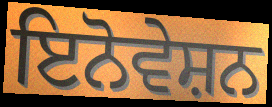
ਇਨੋਵੇਸ਼ਨ